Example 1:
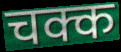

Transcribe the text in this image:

चक्क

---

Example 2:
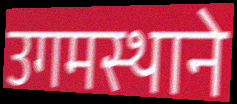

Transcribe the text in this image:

उगमस्थाने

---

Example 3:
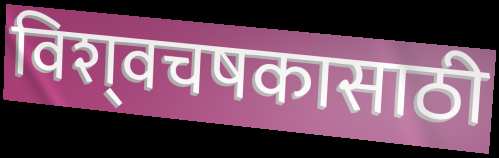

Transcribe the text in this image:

विश्वचषकासाठी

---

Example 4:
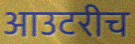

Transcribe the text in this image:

आउटरीच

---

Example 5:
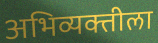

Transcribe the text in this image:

अभिव्यक्तीला